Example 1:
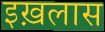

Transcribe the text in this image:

इख़लास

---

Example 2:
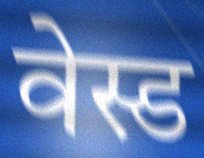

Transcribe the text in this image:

वेस्ड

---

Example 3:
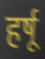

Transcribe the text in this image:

हर्षू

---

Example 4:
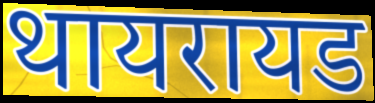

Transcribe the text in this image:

थायरायड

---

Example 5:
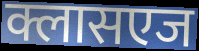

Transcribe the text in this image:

क्लासएज